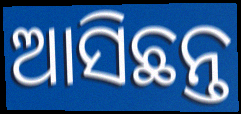
ଆସିଛନ୍ତ